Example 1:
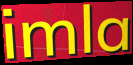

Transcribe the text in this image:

imla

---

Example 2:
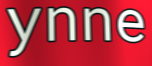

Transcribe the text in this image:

ynne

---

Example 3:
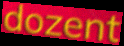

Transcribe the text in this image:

dozent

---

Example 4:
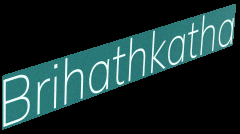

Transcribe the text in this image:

Brihathkatha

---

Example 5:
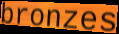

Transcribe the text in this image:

bronzes